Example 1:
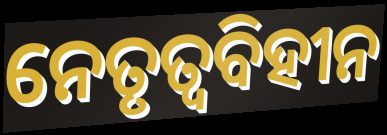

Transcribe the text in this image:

ନେତୃତ୍ୱବିହୀନ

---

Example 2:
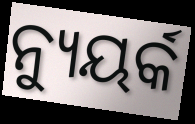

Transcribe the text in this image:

ନ୍ୟୁୟର୍କ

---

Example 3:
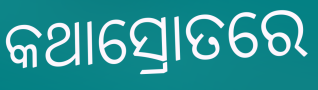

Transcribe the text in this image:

କଥାସ୍ରୋତରେ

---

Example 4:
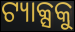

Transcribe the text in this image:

ଟ୍ୟାକ୍ସକୁ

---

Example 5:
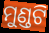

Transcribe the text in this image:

ମୁଣ୍ଡଟି